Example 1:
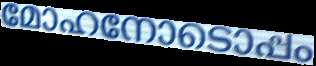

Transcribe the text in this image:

മോഹനോടൊപ്പം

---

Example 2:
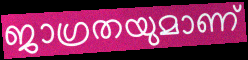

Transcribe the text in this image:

ജാഗ്രതയുമാണ്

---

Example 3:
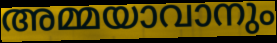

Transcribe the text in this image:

അമ്മയാവാനും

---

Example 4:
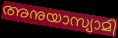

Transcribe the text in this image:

അനുയാസ്യാമി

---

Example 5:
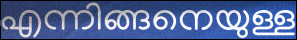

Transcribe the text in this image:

എന്നിങ്ങനെയുള്ള